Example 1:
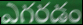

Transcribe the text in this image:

ఎగరడం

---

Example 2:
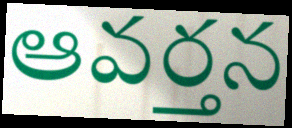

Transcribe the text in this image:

ఆవర్తన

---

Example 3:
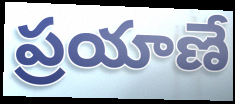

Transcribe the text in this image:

ప్రయాణే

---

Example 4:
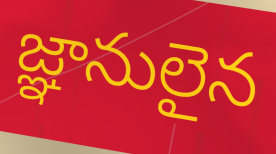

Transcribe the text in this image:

జ్ఞానులైన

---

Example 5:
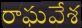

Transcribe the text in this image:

రాఘవేశ